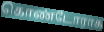
கொண்டோராக